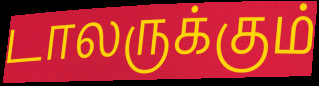
டாலருக்கும்